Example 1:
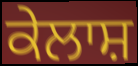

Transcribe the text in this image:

ਕੇਲਾਸ਼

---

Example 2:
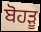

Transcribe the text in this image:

ਬੋਹੜੂ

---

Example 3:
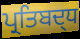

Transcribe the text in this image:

ਪ੍ਰਤਿਬਦ੍ਧ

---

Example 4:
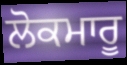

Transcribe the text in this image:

ਲੋਕਮਾਰੂ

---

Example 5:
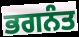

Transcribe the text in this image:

ਭਗਨੰਤ